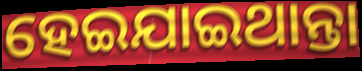
ହେଇଯାଇଥାନ୍ତା